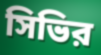
সিভির